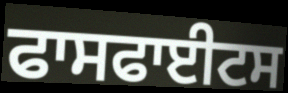
ਫਾਸਫਾਈਟਸ